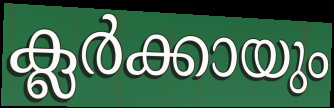
ക്ലർക്കായും